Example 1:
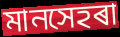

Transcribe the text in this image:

মানসেহৰা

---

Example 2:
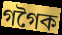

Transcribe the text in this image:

গগৈক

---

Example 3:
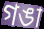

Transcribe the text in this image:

গঙা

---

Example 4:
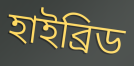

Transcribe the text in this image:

হাইব্ৰিড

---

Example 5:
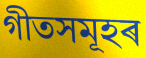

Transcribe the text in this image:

গীতসমূহৰ